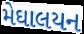
મેઘાલયન